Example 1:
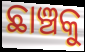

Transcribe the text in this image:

ଛାଞ୍ଚକୁ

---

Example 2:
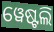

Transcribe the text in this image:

ୱେଷ୍ଟଲି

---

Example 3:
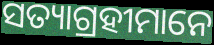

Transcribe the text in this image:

ସତ୍ୟାଗ୍ରହୀମାନେ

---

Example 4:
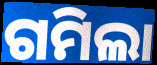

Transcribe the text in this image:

ଗମିଲା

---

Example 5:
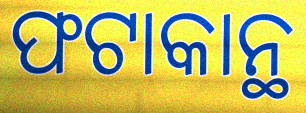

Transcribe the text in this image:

ଫଟାକାନ୍ଥ